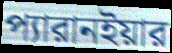
প্যারানইয়ার